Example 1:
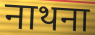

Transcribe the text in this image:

नाथना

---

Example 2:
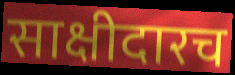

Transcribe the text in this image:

साक्षीदारच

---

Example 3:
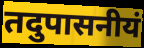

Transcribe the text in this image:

तदुपासनीयं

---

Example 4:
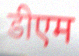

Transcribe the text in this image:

डीएम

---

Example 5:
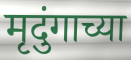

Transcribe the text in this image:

मृदुंगाच्या